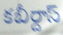
కబీర్దాస్